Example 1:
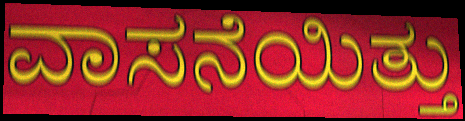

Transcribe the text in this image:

ವಾಸನೆಯಿತ್ತು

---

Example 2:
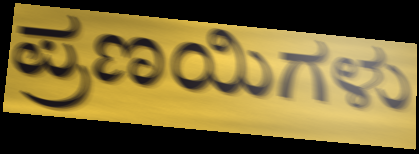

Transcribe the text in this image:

ಪ್ರಣಯಿಗಳು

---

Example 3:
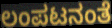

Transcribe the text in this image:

ಲಂಪಟನಂತೆ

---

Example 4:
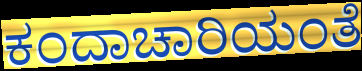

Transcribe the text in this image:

ಕಂದಾಚಾರಿಯಂತೆ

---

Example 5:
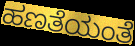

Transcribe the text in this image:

ಹಣತೆಯಂತೆ